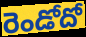
రెండోదో